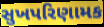
સુખપરિણામક